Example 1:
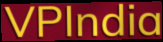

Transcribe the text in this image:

VPIndia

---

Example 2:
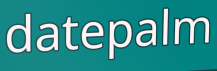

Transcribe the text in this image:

datepalm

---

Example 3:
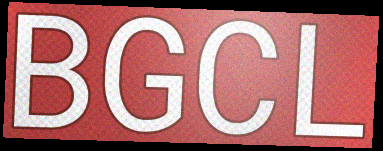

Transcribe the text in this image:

BGCL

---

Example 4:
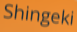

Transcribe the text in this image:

Shingeki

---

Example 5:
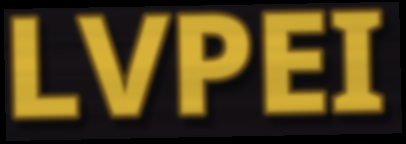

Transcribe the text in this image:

LVPEI